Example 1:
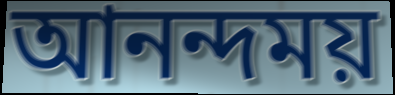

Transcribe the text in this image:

আনন্দময়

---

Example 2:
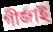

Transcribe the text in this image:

গীৰ্জাই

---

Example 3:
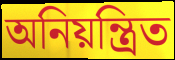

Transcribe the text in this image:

অনিয়ন্ত্ৰিত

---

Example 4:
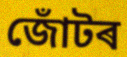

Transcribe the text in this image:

জোঁটৰ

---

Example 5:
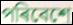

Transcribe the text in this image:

পৰিবেশে